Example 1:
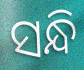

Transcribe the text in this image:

ସନ୍ଧି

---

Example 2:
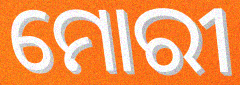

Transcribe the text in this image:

ମୋରୀ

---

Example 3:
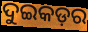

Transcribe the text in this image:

ଦୁଇକଡ଼ର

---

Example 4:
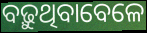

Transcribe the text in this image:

ବଢ଼ୁଥିବାବେଳେ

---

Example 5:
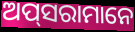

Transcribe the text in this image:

ଅପ୍‍ସରାମାନେ